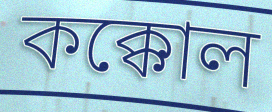
কক্কোল